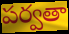
పర్వతా